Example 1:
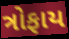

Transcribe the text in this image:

ત્રોફાય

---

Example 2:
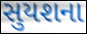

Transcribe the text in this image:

સુયશના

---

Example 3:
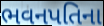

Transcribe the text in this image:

ભવનપતિના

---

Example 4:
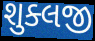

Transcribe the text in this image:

શુક્લજી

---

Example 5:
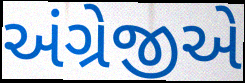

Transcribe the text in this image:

અંગ્રેજીએ